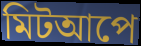
মিটআপে